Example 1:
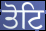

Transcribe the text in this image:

ਤੋਟਿ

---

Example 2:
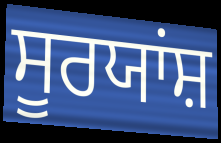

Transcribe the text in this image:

ਸੂਰਯਾਂਸ਼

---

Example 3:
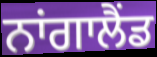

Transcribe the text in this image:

ਨਾਂਗਾਲੈਂਡ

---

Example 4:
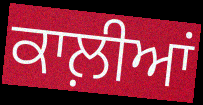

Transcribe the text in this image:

ਕਾਲ਼ੀਆਂ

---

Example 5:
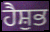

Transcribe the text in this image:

ਹੈਸ਼ੁਭ